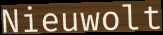
Nieuwolt